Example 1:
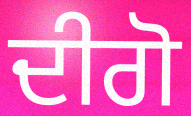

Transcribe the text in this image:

ਦੀਗੋ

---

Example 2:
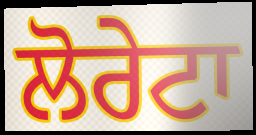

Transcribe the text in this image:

ਲੋਰੇਟਾ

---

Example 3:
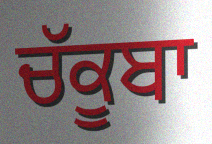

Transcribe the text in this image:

ਚੱਕੂਬਾ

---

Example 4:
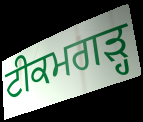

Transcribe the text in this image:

ਟੀਕਮਗੜ੍ਹ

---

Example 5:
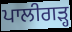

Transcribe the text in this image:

ਪਾਲੀਗੜ੍ਹ